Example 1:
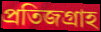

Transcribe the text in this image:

প্রতিজগ্রাহ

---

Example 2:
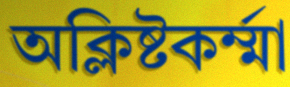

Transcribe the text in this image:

অক্লিষ্টকর্ম্মা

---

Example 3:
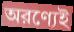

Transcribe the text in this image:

অরণ্যেই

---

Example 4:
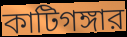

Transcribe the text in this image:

কাটিগঙ্গার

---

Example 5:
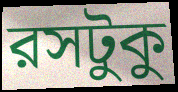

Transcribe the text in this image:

রসটুকু